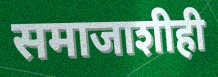
समाजाशीही